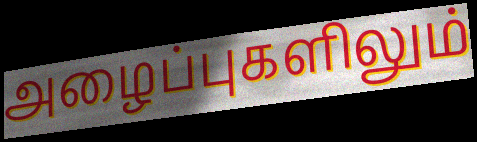
அழைப்புகளிலும்